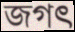
জগৎ